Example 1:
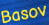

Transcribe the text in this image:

Basov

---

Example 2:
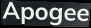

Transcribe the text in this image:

Apogee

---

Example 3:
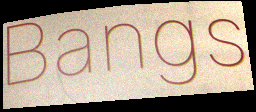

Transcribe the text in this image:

Bangs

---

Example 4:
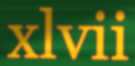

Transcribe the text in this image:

xlvii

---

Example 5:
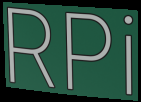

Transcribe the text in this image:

RPi